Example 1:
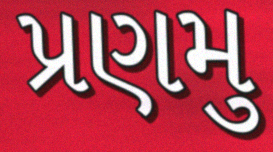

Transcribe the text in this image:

પ્રણમુ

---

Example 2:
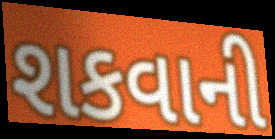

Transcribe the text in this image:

શકવાની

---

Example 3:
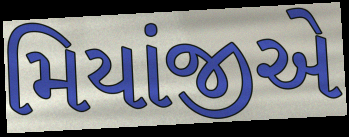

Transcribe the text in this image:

મિયાંજીએ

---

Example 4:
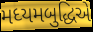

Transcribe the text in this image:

મધ્યમબુદ્ધિએ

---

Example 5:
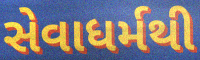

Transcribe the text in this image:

સેવાધર્મથી